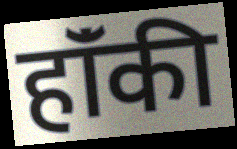
हॉंकी